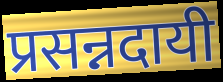
प्रसन्नदायी